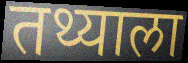
तथ्याला